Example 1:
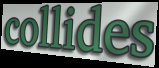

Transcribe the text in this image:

collides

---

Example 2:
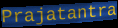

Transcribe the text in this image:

Prajatantra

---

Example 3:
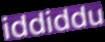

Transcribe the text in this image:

iddiddu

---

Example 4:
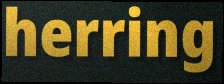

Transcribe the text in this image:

herring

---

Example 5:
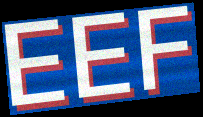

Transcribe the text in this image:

EEF